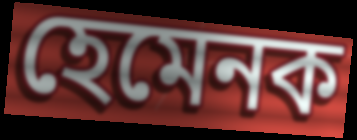
হেমেনক